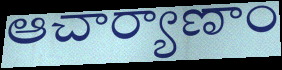
ఆచార్యాణాం